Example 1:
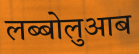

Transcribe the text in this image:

लब्बोलुआब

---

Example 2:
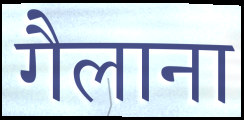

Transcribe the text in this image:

गैलाना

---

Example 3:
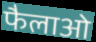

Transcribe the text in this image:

फैलाओ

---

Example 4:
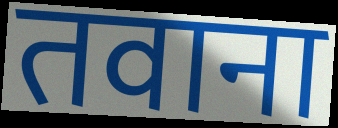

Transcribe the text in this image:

तवाना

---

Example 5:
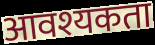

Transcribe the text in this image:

आवश्यकता